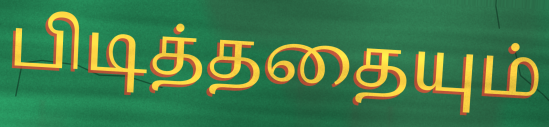
பிடித்ததையும்